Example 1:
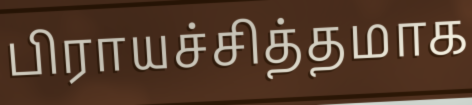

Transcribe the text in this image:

பிராயச்சித்தமாக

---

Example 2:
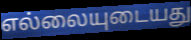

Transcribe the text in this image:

எல்லையுடையது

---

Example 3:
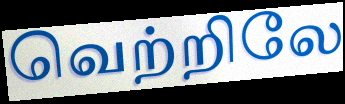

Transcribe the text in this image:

வெற்றிலே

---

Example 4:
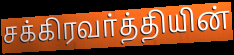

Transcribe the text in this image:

சக்கிரவர்த்தியின்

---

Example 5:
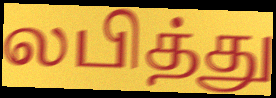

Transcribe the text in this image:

லபித்து